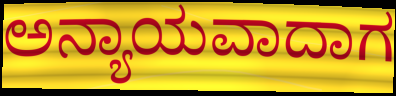
ಅನ್ಯಾಯವಾದಾಗ